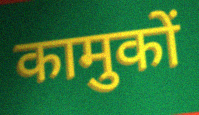
कामुकों